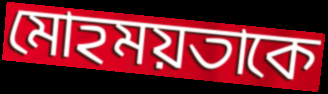
মোহময়তাকে